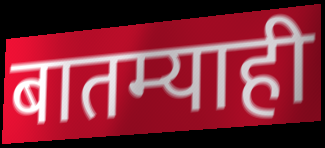
बातम्याही